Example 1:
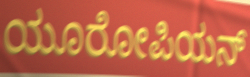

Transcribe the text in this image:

ಯೂರೋಪಿಯನ್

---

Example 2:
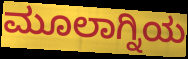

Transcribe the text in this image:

ಮೂಲಾಗ್ನಿಯ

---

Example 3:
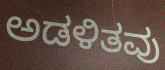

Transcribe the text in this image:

ಅಡಳಿತವು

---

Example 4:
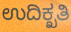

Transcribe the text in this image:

ಉದಿಕ್ಖತಿ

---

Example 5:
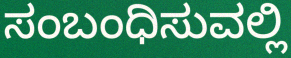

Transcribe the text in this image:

ಸಂಬಂಧಿಸುವಲ್ಲಿ